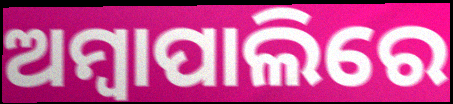
ଅମ୍ବାପାଲିରେ